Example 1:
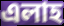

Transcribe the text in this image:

এলাহ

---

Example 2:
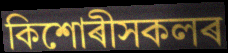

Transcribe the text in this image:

কিশোৰীসকলৰ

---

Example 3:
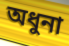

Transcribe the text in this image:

অধুনা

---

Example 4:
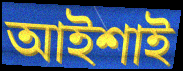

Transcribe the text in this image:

আইশাই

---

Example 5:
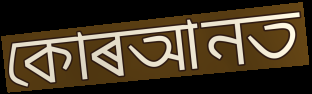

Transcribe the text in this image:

কোৰআনত